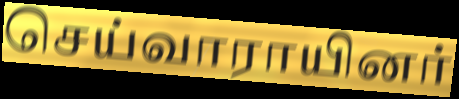
செய்வாராயினர்